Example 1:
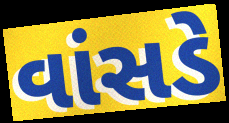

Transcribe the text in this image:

વાંસડે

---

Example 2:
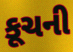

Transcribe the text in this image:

કૂચની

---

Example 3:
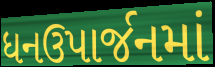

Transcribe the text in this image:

ધનઉપાર્જનમાં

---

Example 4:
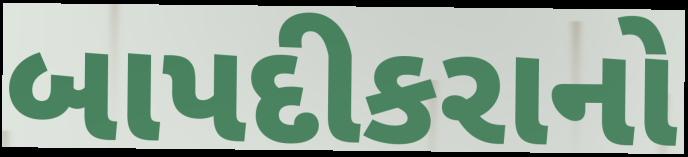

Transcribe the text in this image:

બાપદીકરાનો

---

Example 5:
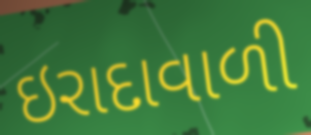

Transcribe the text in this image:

ઇરાદાવાળી